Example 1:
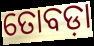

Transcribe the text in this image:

ତୋବଡ଼ା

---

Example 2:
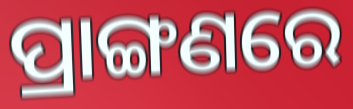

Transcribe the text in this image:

ପ୍ରାଙ୍ଗଣରେ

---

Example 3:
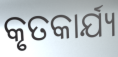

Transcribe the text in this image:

କୃତକାର୍ଯ୍ୟ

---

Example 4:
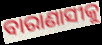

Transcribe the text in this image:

ବାରାଣାସୀକୁ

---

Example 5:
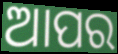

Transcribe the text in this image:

ଆପର